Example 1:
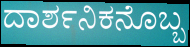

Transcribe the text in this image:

ದಾರ್ಶನಿಕನೊಬ್ಬ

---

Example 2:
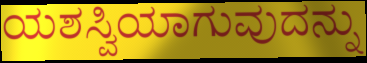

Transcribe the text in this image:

ಯಶಸ್ವಿಯಾಗುವುದನ್ನು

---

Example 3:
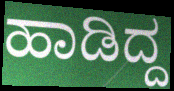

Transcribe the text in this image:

ಹಾಡಿದ್ದ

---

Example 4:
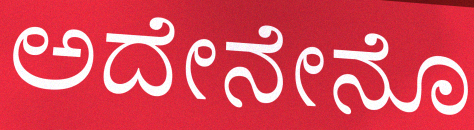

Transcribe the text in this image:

ಅದೇನೇನೊ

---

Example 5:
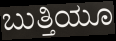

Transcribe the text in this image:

ಬುತ್ತಿಯೂ